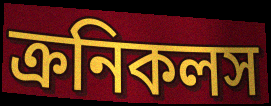
ক্রনিকলস